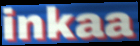
inkaa